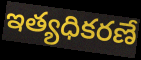
ఇత్యధికరణే